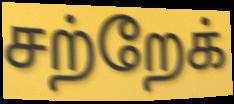
சற்றேக்